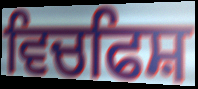
ਵਿਚਫਿਸ਼